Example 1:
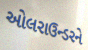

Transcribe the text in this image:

ઓલરાઉન્ડરને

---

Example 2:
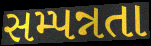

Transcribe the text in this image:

સમ્પન્નતા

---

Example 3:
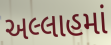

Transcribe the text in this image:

અલ્લાહમાં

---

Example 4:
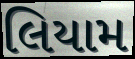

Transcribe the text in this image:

લિયામ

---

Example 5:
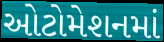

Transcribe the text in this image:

ઓટોમેશનમાં